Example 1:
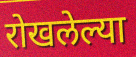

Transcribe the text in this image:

रोखलेल्या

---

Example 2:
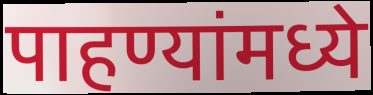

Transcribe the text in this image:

पाहण्यांमध्ये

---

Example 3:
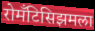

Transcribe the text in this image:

रोमँटिसिझमला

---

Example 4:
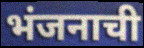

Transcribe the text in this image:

भंजनाची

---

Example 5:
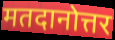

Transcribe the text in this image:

मतदानोत्तर